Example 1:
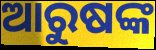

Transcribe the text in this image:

ଆରୁଷଙ୍କ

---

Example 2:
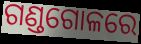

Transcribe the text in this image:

ଗଣ୍ଡଗୋଳରେ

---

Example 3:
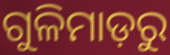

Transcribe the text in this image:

ଗୁଳିମାଡ଼ରୁ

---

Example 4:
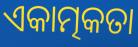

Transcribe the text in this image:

ଏକାତ୍ମକତା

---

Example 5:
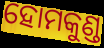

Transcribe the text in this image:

ହୋମକୁଣ୍ଡ